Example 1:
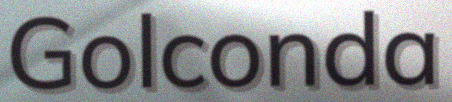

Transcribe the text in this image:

Golconda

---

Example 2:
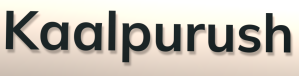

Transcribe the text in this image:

Kaalpurush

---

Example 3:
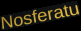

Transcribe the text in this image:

Nosferatu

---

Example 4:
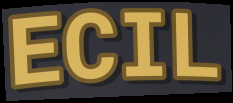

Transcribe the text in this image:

ECIL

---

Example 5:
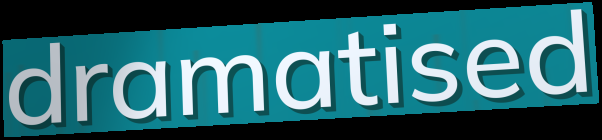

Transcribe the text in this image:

dramatised